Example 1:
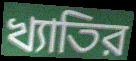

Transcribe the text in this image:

খ্যাতির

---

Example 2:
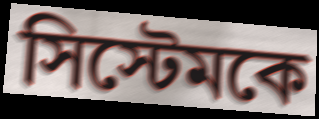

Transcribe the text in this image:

সিস্টেমকে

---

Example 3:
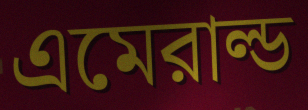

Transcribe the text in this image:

এমেরাল্ড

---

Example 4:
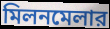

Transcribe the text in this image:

মিলনমেলার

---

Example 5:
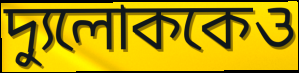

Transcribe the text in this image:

দ্যুলোককেও